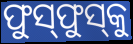
ଫୁସ୍‌ଫୁସ୍‌କୁ